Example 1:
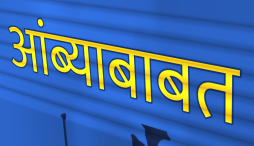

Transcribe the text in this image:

आंब्याबाबत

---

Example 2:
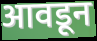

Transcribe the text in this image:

आवडून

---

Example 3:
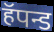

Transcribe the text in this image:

हॅपन्ड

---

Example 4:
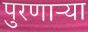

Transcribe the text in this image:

पुरणाऱ्या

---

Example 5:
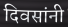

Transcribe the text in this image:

दिवसांनी